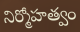
నిర్మోహత్వం